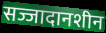
सज्जादानशीन